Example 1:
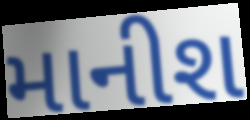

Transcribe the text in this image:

માનીશ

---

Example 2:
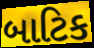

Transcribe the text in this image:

બાટિક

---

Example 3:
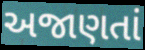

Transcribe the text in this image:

અજાણતાં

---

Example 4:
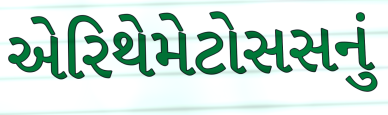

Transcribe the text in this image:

એરિથેમેટોસસનું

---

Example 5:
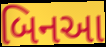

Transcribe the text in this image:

બિનઆ